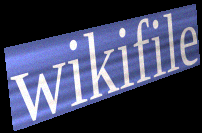
wikifile